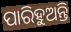
ପାରିହୁଅନ୍ତି